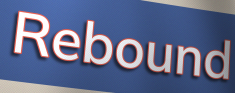
Rebound